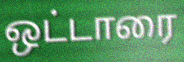
ஒட்டாரை